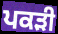
ਪਕੜੀ